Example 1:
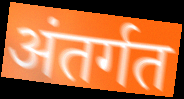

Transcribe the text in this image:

अंतर्गत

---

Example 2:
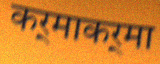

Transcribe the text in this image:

कर्माकर्मा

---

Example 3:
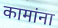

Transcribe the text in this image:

कामांना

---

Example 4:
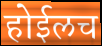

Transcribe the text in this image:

होईलच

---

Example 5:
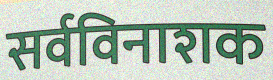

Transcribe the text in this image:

सर्वविनाशक